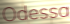
Odessa